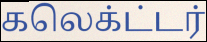
கலெக்ட்டர்